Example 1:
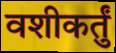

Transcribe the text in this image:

वशीकर्तुं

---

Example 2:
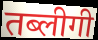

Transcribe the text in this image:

तब्‍लीगी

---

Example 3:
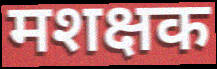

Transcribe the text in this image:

मशक्षक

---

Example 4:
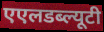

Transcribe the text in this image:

एएलडब्ल्यूटी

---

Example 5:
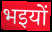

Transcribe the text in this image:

भइयों